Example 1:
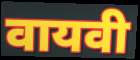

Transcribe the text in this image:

वायवी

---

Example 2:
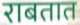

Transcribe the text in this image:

राबतात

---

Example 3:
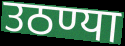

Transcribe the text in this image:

उठण्या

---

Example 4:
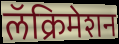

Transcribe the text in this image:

लॅक्रिमेशन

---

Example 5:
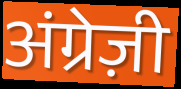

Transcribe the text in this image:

अंग्रेज़ी